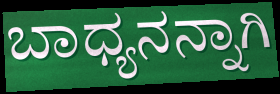
ಬಾಧ್ಯನನ್ನಾಗಿ